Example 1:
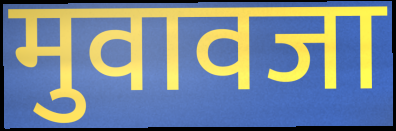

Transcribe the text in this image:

मुवावजा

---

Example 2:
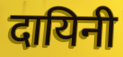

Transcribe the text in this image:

दायिनी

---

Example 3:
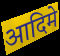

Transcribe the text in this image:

आदिमे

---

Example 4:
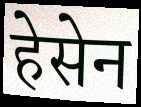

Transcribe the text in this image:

हेसेन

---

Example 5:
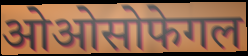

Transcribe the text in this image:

ओओसोफेगल